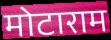
मोटाराम